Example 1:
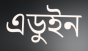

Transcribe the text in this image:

এডুইন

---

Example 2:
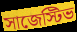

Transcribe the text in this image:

সাজেস্টিভ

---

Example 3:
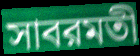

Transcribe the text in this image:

সাবরমতী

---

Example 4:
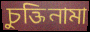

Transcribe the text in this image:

চুক্তিনামা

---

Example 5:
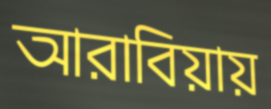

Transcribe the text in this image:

আরাবিয়ায়